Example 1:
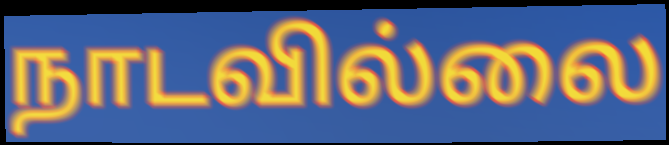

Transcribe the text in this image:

நாடவில்லை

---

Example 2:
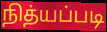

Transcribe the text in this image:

நித்யப்படி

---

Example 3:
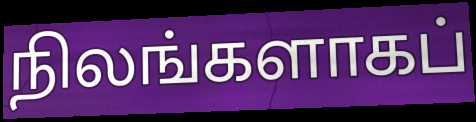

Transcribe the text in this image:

நிலங்களாகப்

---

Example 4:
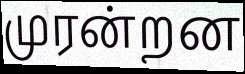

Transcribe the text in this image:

முரன்றன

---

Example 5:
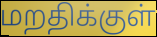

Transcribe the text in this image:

மறதிக்குள்